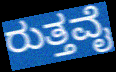
ರುತ್ತವೈ